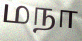
மநா